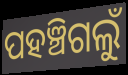
ପହଞ୍ଚିଗଲୁଁ